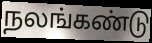
நலங்கண்டு